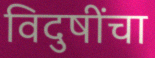
विदुषींचा